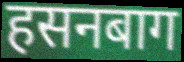
हसनबाग